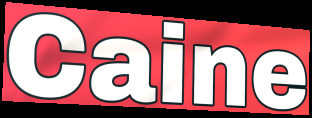
Caine